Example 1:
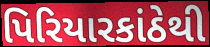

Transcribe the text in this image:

પિરિયારકાંઠેથી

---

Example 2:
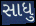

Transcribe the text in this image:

સાધુ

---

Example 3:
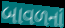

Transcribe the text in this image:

બાવળનાં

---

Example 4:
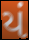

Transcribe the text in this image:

યં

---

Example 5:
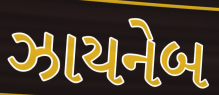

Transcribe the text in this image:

ઝાયનેબ